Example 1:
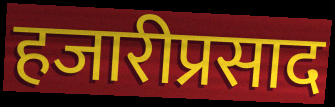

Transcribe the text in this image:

हजारीप्रसाद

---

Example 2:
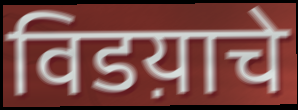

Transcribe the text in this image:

विडय़ाचे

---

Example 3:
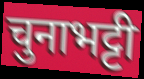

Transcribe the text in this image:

चुनाभट्टी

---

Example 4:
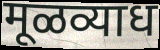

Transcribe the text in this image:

मूळव्याध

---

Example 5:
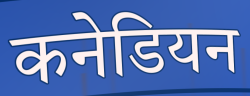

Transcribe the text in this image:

कनेडियन